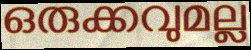
ഒരുക്കവുമല്ല